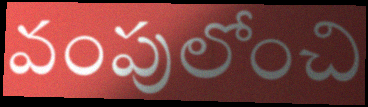
వంపులోంచి